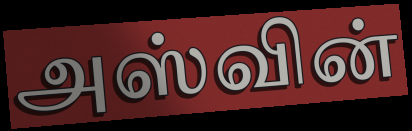
அஸ்வின்